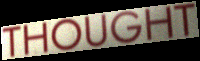
THOUGHT